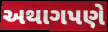
અથાગપણે